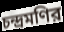
চন্দ্রমণির